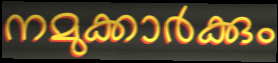
നമുക്കാർക്കും